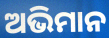
ଅଭିମାନ